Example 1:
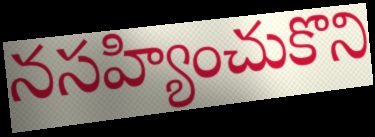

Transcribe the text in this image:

నసహ్యించుకొని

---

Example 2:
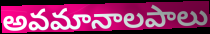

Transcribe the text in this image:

అవమానాలపాలు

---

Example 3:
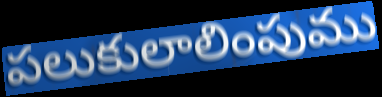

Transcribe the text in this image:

పలుకులాలింపుము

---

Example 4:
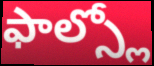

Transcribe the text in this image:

ఫాల్స్లో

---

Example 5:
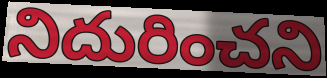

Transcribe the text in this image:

నిదురించని